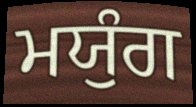
ਮਯੁੰਗ